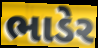
ભાડેર